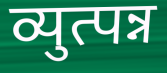
व्युत्पन्न